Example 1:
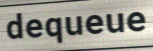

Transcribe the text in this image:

dequeue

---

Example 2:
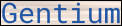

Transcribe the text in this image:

Gentium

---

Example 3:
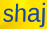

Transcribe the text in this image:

shaj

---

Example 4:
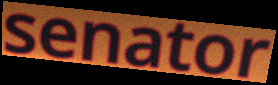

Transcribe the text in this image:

senator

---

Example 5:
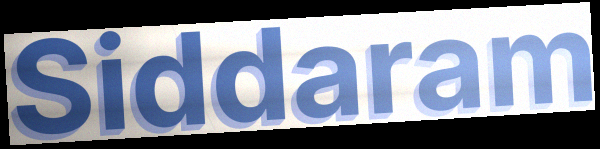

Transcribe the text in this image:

Siddaram